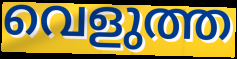
വെളുത്ത